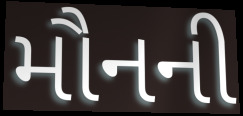
મૌનની